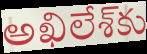
అఖిలేశ్‌కు